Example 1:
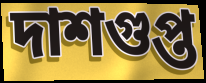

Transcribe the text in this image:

দাশগুপ্ত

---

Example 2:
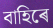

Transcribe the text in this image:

বাহিৰে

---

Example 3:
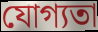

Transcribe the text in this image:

যোগ্যতা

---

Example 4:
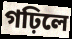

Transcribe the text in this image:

গঢ়িলে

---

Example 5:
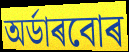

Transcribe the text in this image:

অৰ্ডাৰবোৰ